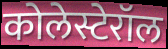
कोलेस्टेरॉल